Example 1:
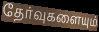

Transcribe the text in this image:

தேர்வுகளையும்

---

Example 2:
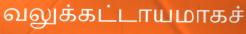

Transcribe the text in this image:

வலுக்கட்டாயமாகச்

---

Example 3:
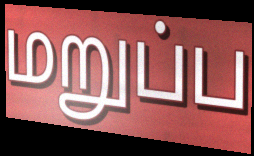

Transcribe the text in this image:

மறுப்ப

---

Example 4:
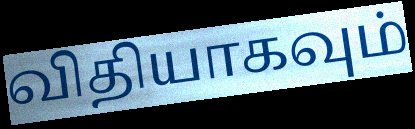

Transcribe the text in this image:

விதியாகவும்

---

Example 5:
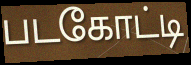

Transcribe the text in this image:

படகோட்டி